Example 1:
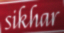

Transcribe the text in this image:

sikhar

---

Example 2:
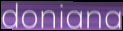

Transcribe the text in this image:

doniana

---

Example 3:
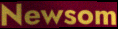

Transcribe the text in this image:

Newsom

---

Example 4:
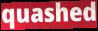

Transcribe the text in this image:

quashed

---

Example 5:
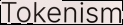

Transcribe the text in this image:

Tokenism